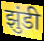
झुंडी